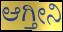
ಆಗ್ತೀನಿ